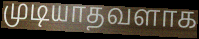
முடியாதவளாக